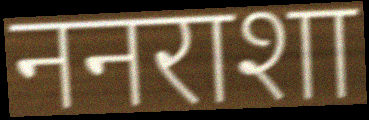
ननराशा